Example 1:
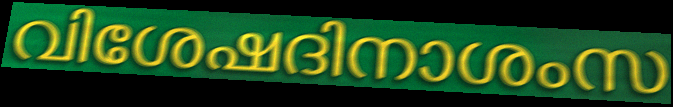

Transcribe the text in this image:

വിശേഷദിനാശംസ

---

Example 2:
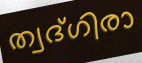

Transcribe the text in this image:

ത്വദ്ഗിരാ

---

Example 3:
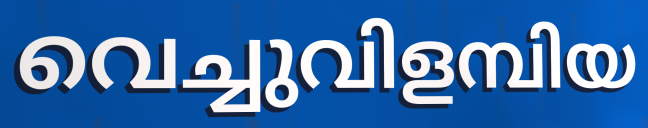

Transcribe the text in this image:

വെച്ചുവിളമ്പിയ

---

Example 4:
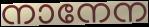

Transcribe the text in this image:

നാനേന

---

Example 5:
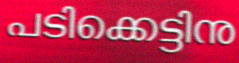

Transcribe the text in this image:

പടിക്കെട്ടിനു